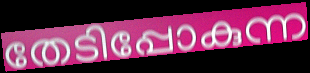
തേടിപ്പോകുന്ന